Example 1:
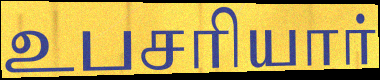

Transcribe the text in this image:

உபசரியார்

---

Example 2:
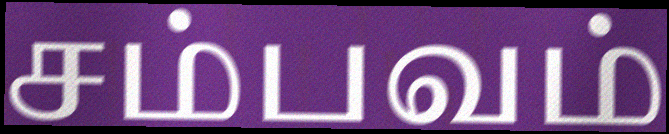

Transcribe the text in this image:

சம்பவம்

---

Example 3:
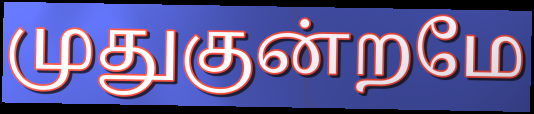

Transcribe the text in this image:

முதுகுன்றமே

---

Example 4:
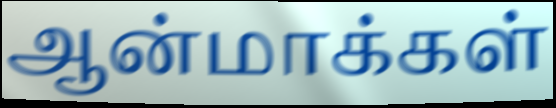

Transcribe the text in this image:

ஆன்மாக்கள்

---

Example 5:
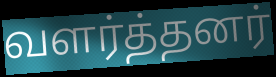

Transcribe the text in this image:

வளர்த்தனர்